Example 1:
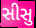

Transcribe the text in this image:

સીસુ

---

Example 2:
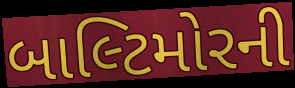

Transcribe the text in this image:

બાલ્ટિમોરની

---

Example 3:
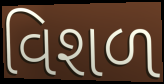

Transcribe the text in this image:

વિશળ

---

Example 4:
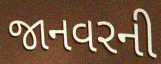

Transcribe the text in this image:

જાનવરની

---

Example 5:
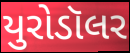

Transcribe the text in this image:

યુરોડૉલર